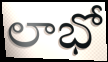
లాభో